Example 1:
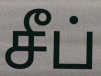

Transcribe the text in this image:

சீப்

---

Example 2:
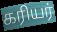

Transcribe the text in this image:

கரியர்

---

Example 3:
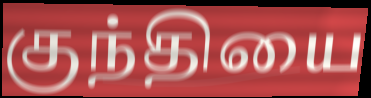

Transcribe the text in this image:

குந்தியை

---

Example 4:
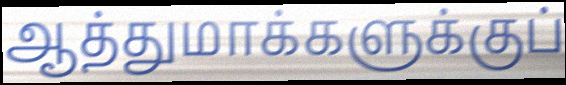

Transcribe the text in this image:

ஆத்துமாக்களுக்குப்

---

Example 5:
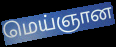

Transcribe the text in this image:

மெய்ஞான